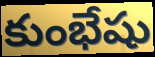
కుంభేషు